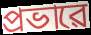
প্ৰভাৱে